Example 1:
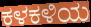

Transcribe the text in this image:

ಕಳಕಳಿಯ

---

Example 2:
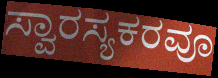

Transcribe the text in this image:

ಸ್ವಾರಸ್ಯಕರವೂ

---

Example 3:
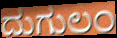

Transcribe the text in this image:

ದುಗುಲಂ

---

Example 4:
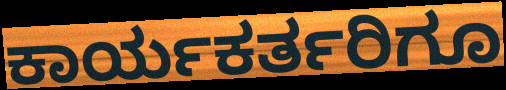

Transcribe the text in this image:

ಕಾರ್ಯಕರ್ತರಿಗೂ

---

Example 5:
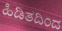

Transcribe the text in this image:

ಹಿಡಿತದಿಂದ